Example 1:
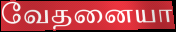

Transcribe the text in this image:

வேதனையா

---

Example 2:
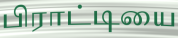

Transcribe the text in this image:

பிராட்டியை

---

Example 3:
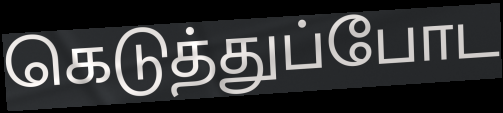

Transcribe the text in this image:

கெடுத்துப்போட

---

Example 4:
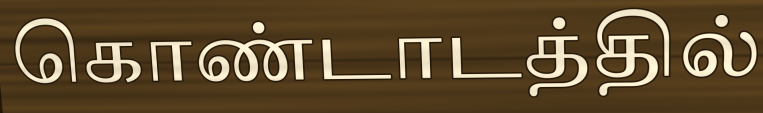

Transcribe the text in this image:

கொண்டாடத்தில்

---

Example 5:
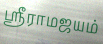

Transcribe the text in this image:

ஸ்ரீராமஜயம்